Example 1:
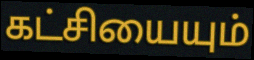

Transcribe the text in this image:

கட்சியையும்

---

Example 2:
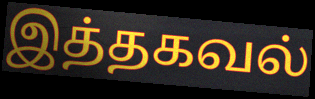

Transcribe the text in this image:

இத்தகவல்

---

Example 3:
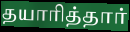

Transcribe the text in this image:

தயாரித்தார்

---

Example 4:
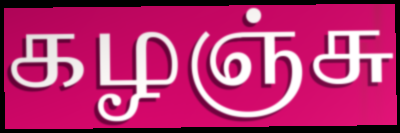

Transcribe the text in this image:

கழஞ்சு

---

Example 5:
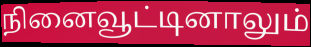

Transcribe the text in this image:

நினைவூட்டினாலும்